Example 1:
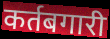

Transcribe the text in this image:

कर्तबगारी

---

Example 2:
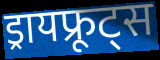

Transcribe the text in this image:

ड्रायफ्रूट्स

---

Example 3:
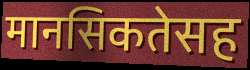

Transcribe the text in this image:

मानसिकतेसह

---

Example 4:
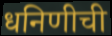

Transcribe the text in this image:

धनिणीची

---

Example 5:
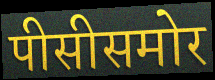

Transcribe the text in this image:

पीसीसमोर